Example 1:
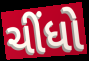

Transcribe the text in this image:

ચીંધો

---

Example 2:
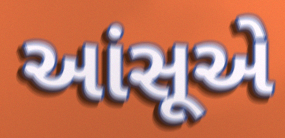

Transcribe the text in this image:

આંસૂએ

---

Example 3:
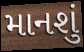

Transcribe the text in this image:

માનશું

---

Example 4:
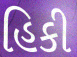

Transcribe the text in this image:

હિકી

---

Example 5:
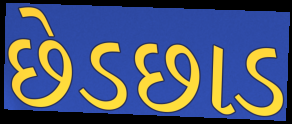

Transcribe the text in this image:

છેડછાડ